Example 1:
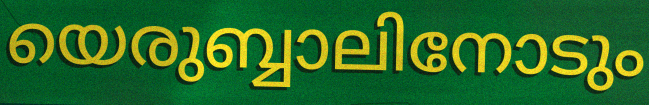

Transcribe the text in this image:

യെരുബ്ബാലിനോടും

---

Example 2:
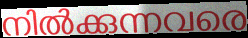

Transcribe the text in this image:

നിൽക്കുന്നവരെ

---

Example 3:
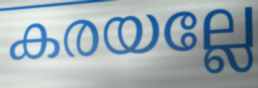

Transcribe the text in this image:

കരയല്ലേ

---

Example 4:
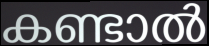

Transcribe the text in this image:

കണ്ടാൽ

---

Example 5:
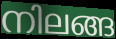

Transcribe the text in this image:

നിലങ്ങ